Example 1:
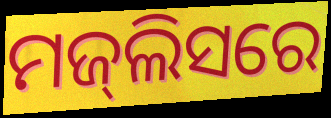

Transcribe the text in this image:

ମଜ୍‌ଲିସରେ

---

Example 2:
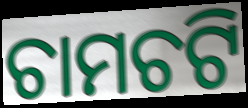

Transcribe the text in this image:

ଚାମଚଟି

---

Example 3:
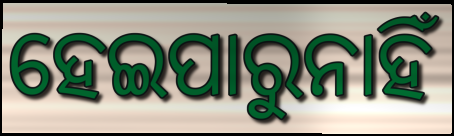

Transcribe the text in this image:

ହେଇପାରୁନାହିଁ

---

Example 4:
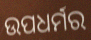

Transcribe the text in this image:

ଉପଧର୍ମର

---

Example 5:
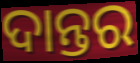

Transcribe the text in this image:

ଦାନ୍ତର